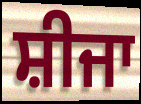
ਸ਼ੀਜਾ